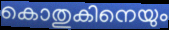
കൊതുകിനെയും